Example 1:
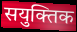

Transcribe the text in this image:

सयुक्तिक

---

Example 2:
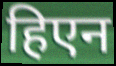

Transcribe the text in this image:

हिएन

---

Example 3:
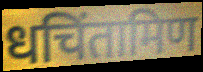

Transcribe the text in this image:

धचिंतामिण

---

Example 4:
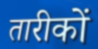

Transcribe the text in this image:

तारीकों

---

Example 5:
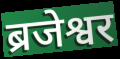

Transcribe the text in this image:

ब्रजेश्वर